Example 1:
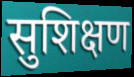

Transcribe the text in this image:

सुशिक्षण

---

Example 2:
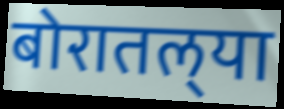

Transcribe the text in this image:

बोरातल्या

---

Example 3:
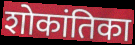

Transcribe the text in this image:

शोकांतिका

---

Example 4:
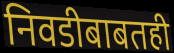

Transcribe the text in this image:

निवडीबाबतही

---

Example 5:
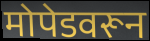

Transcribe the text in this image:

मोपेडवरून